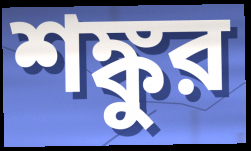
শঙ্কুর